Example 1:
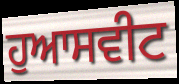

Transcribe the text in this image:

ਹੁਆਸਵੀਟ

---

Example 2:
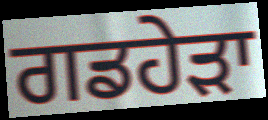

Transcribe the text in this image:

ਗਡਹੇੜਾ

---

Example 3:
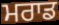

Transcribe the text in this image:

ਮਰਾਡ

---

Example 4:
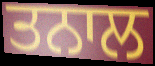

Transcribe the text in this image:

ਤਨਾਲ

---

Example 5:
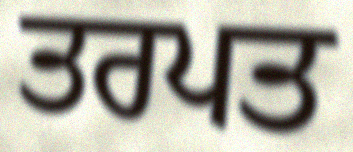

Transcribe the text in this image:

ਤਰਪਤ